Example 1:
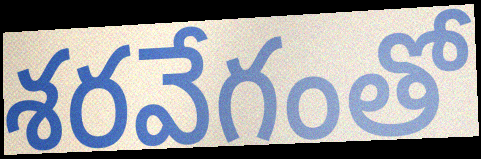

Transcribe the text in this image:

శరవేగంతో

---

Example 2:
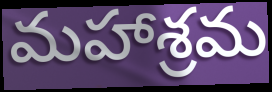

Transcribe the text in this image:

మహాశ్రమ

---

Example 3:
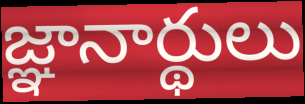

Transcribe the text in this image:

జ్ఞానార్థులు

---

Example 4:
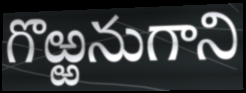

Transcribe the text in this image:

గొఱ్ఱనుగాని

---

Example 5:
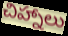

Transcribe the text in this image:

చిహ్నాలు